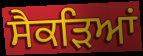
ਸੈਕੜਿਆਂ